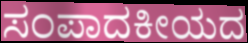
ಸಂಪಾದಕೀಯದ